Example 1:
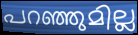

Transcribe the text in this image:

പറഞ്ഞുമില്ല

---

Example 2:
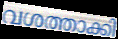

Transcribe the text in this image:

വശത്താക്കി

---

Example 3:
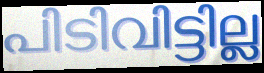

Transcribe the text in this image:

പിടിവിട്ടില്ല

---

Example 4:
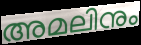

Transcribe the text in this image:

അമലിനും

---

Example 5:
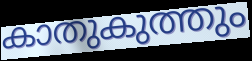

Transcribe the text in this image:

കാതുകുത്തും